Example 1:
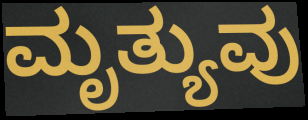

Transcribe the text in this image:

ಮೃತ್ಯುವು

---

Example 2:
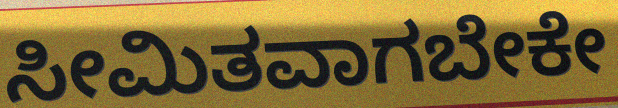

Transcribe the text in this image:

ಸೀಮಿತವಾಗಬೇಕೇ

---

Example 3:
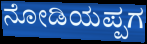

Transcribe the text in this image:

ನೋಡಿಯಪ್ಪಗ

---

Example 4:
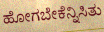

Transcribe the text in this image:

ಹೋಗಬೇಕೆನ್ನಿಸಿತು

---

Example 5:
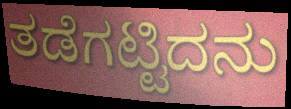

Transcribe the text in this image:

ತಡೆಗಟ್ಟಿದನು